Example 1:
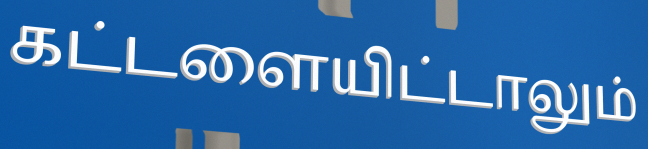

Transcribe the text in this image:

கட்டளையிட்டாலும்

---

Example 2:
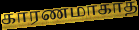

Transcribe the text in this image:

காரணமாகாத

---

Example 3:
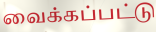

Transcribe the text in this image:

வைக்கப்பட்டு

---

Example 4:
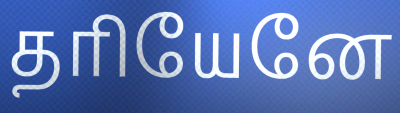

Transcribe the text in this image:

தரியேனே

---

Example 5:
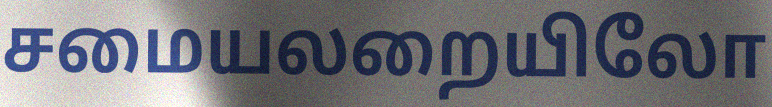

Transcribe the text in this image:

சமையலறையிலோ